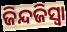
ଜିନ୍ଦଜିସ୍ୱା